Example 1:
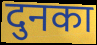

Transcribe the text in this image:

दुनका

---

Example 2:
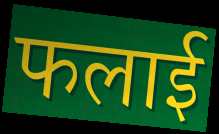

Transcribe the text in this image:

फलाई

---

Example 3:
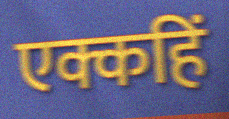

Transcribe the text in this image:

एक्कहिं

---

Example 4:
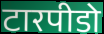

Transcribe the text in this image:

टारपीडो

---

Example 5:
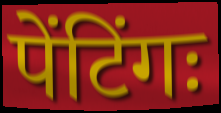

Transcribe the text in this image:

पेंटिंगः